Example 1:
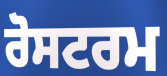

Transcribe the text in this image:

ਰੋਸਟਰਮ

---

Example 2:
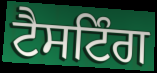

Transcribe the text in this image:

ਟੈਸਟਿੰਗ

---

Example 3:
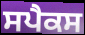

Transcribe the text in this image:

ਸਪੈਕਸ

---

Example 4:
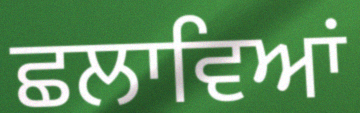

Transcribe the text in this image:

ਛਲਾਵਿਆਂ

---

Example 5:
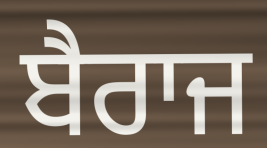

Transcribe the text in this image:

ਬੈਰਾਜ